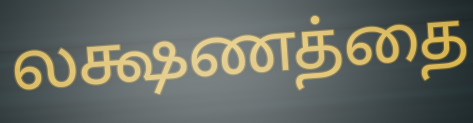
லக்ஷணத்தை